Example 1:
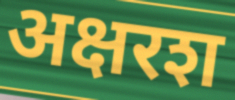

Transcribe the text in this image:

अक्षरश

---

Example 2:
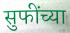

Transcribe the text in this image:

सुफींच्या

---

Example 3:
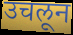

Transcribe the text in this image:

उचलून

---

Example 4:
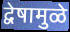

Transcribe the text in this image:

द्वेषामुळे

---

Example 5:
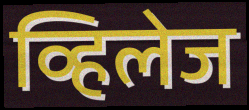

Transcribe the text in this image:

व्हिलेज